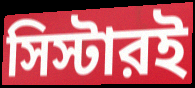
সিস্টারই